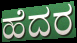
ಹೆದರ